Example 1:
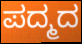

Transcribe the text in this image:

ಪದ್ಮದ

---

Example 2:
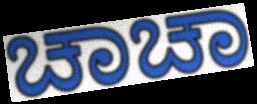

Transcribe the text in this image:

ಚಾಚಾ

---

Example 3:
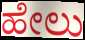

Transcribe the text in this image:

ಹೇಲು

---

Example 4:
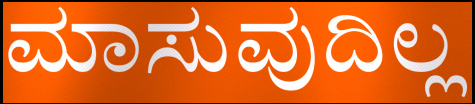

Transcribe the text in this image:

ಮಾಸುವುದಿಲ್ಲ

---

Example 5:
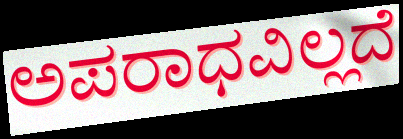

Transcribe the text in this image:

ಅಪರಾಧವಿಲ್ಲದೆ